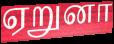
ஏறுனா